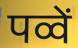
पव्वें